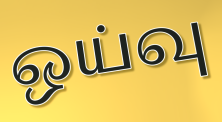
ஒய்வு